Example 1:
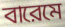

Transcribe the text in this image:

বারেমে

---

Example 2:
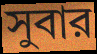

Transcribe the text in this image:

সুবার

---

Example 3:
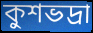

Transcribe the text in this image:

কুশভদ্রা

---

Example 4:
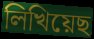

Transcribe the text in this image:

লিখিয়েছ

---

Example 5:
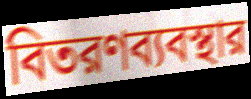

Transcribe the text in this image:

বিতরণব্যবস্থার